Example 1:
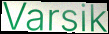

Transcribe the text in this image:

Varsik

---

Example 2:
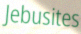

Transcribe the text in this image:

Jebusites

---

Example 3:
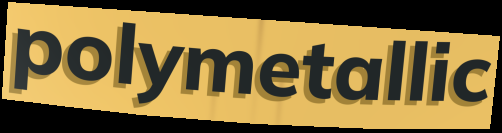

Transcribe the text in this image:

polymetallic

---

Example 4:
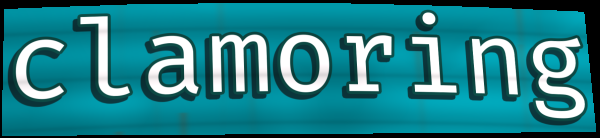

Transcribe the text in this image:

clamoring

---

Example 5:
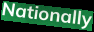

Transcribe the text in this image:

Nationally